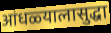
आंधळ्यालासुद्धा